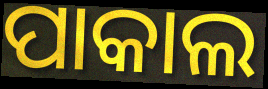
ପାକାଲ